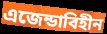
এজেন্ডাবিহীন